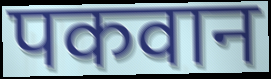
पकवान